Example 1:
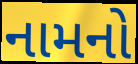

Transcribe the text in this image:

નામનો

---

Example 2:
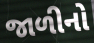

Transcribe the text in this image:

જાળીનો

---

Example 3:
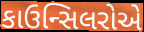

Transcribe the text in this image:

કાઉન્સિલરોએ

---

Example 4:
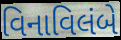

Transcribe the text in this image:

વિનાવિલંબે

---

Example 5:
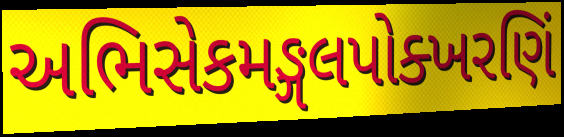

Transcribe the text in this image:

અભિસેકમઙ્ગલપોક્ખરણિં